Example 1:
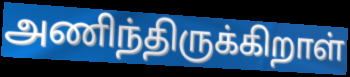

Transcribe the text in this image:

அணிந்திருக்கிறாள்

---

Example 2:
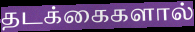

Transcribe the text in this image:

தடக்கைகளால்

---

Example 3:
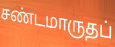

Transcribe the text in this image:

சண்டமாருதப்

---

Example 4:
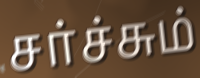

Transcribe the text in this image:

சர்ச்சும்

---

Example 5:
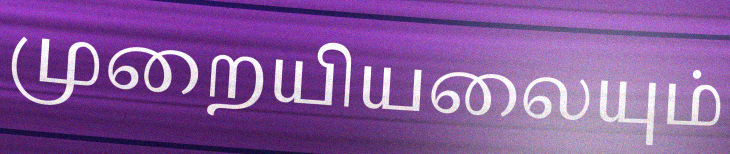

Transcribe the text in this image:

முறையியலையும்